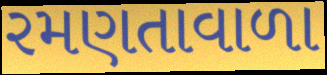
રમણતાવાળા